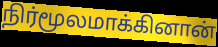
நிர்மூலமாக்கினான்